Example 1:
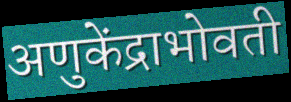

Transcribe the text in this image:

अणुकेंद्राभोवती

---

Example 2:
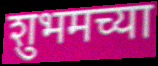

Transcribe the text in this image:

शुभमच्या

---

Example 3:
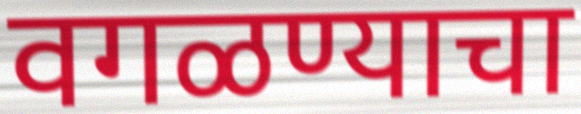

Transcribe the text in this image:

वगळण्याचा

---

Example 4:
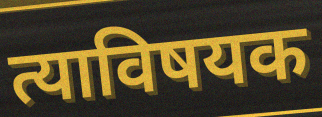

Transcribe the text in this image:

त्याविषयक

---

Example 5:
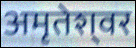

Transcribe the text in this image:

अमृतेश्वर